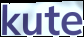
kute